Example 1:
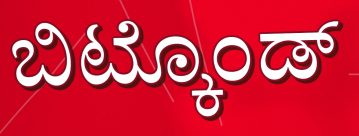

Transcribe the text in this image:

ಬಿಟ್ಕೊಂಡ್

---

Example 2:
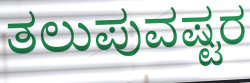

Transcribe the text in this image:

ತಲುಪುವಷ್ಟರ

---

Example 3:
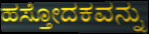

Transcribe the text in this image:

ಹಸ್ತೋದಕವನ್ನು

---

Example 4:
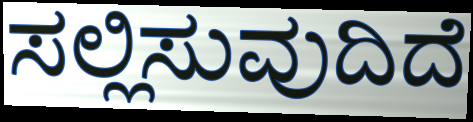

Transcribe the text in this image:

ಸಲ್ಲಿಸುವುದಿದೆ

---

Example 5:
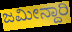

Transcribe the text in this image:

ಜಮೀನ್ದಾರಿ